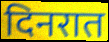
दिनरात